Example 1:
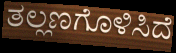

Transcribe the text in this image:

ತಲ್ಲಣಗೊಳಿಸಿದೆ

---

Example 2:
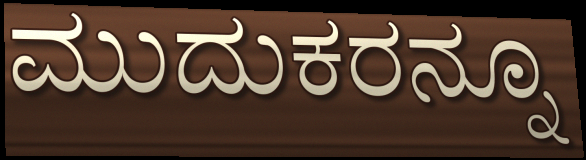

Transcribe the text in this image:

ಮುದುಕರನ್ನೂ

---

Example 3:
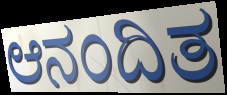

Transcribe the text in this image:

ಆನಂದಿತ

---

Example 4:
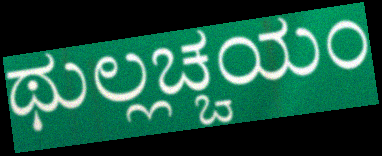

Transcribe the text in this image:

ಥುಲ್ಲಚ್ಚಯಂ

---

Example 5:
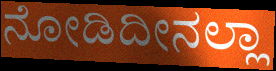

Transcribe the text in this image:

ನೋಡಿದೀನಲ್ಲಾ